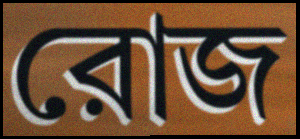
রোজ